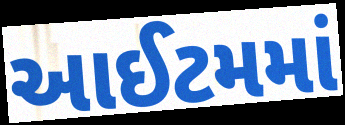
આઈટમમાં